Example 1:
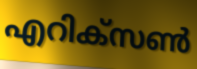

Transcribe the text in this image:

എറിക്സൺ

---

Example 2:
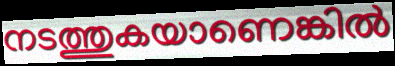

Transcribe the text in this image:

നടത്തുകയാണെങ്കിൽ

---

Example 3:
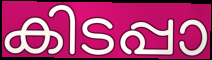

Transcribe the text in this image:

കിടപ്പാ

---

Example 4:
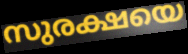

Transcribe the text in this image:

സുരക്ഷയെ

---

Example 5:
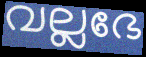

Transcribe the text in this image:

വല്ലഭേ